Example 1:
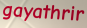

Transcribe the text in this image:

gayathrir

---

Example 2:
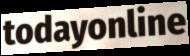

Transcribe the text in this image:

todayonline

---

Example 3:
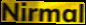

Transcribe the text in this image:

Nirmal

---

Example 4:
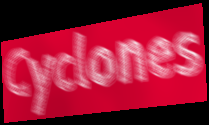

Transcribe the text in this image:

Cyclones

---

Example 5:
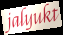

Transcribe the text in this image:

jalyukt